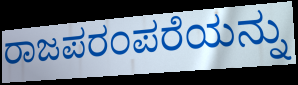
ರಾಜಪರಂಪರೆಯನ್ನು